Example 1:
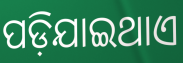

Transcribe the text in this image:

ପଡ଼ିଯାଇଥାଏ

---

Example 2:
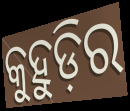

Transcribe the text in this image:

କୁହୁଡ଼ିର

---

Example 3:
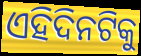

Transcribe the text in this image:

ଏହିଦିନଟିକୁ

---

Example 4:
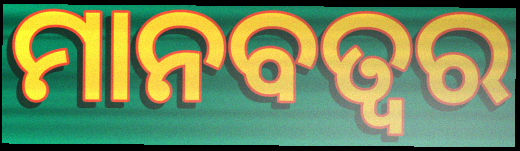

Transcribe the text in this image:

ମାନବତ୍ୱର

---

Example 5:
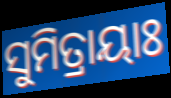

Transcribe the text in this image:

ସୁମିତ୍ରାୟାଃ